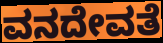
ವನದೇವತೆ